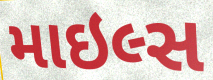
માઇલ્સ